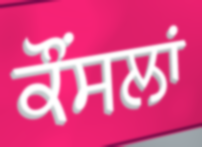
ਕੌਂਸਲਾਂ